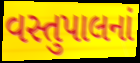
વસ્તુપાલનાં